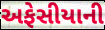
અફેસીયાની